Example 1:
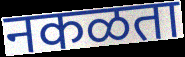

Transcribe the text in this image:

नकळता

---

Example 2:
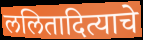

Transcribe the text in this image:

ललितादित्याचे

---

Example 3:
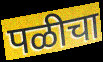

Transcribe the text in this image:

पळीचा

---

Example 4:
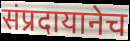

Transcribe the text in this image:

संप्रदायानेच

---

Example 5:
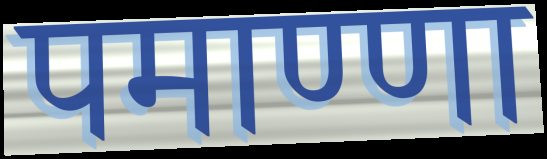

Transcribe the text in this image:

पमाण्णा